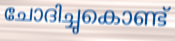
ചോദിച്ചുകൊണ്ട്